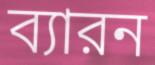
ব্যারন